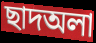
ছাদঅলা